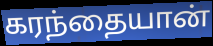
கரந்தையான்